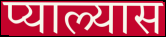
प्याल्यास